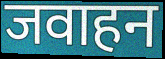
जवाहन